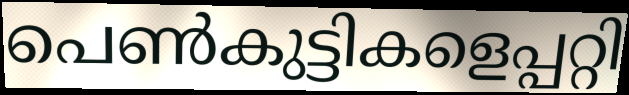
പെൺകുട്ടികളെപ്പറ്റി